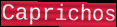
Caprichos